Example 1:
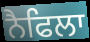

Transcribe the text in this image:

ਨੈਫਿਲਾ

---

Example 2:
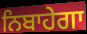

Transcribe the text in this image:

ਨਿਬਾਹੇਗਾ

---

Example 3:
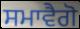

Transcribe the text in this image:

ਸਮਾਵੈਗੋ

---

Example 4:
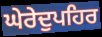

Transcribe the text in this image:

ਘੇਰੇਦੁਪਹਿਰ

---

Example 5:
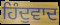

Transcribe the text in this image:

ਹਿੰਦੁਵਾਦ